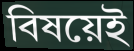
বিষয়েই